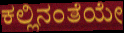
ಕಲ್ಲಿನಂತೆಯೇ